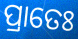
ପ୍ରାତେଃ